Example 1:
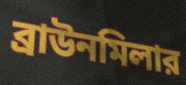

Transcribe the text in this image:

ব্রাউনমিলার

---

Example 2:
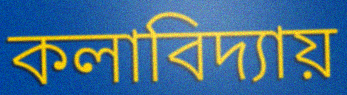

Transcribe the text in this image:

কলাবিদ্যায়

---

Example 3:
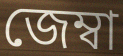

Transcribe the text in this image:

জেম্বা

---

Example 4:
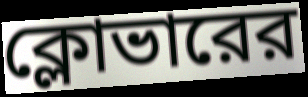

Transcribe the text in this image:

ক্লোভারের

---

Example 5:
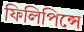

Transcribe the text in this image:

ফিলিপিন্সে